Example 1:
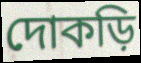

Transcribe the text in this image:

দোকড়ি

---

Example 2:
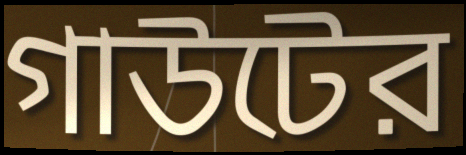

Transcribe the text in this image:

গাউটের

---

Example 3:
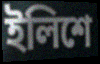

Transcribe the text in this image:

ইলিশে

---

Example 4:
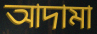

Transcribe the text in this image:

আদামা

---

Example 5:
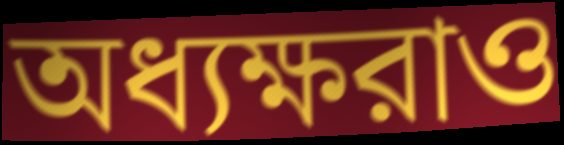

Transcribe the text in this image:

অধ্যক্ষরাও